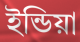
ইন্ডিয়া